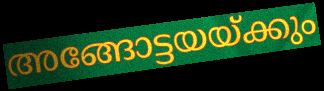
അങ്ങോട്ടയയ്ക്കും